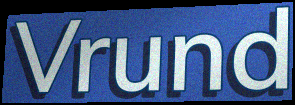
Vrund